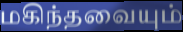
மகிந்தவையும்